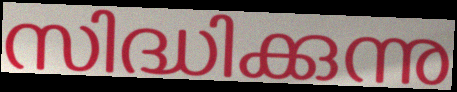
സിദ്ധിക്കുന്നു